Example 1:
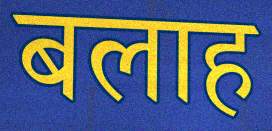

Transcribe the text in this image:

बलाह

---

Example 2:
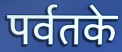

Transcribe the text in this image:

पर्वतके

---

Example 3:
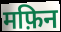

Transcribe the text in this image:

मफ़िन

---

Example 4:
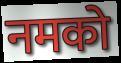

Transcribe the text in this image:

नमको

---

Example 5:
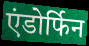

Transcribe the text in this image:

एंडोर्फिन